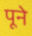
पूने